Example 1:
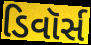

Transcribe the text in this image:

ડિવૉર્સ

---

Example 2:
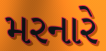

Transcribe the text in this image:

મરનારે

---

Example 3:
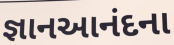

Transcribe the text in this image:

જ્ઞાનઆનંદના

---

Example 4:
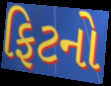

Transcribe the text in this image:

ફિટનો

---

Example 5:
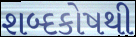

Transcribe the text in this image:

શબ્દકોષથી